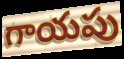
గాయపు